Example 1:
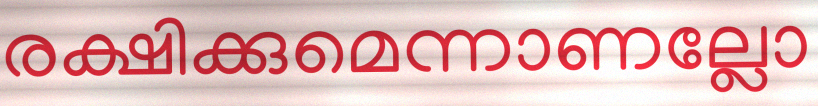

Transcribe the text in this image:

രക്ഷിക്കുമെന്നാണല്ലോ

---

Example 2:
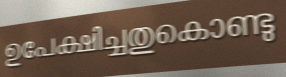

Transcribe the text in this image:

ഉപേക്ഷിച്ചതുകൊണ്ടു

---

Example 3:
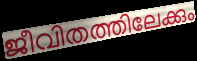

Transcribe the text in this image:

ജീവിതത്തിലേക്കും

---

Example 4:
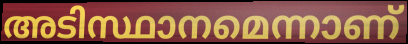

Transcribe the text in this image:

അടിസ്ഥാനമെന്നാണ്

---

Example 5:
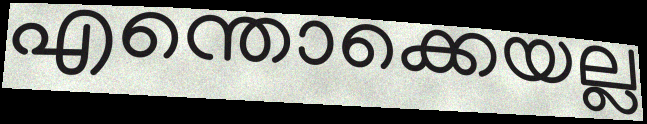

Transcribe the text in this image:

എന്തൊക്കെയല്ല